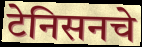
टेनिसनचे